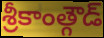
శ్రీకాంత్గౌడ్